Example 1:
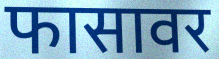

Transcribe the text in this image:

फासावर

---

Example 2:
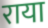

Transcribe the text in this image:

राया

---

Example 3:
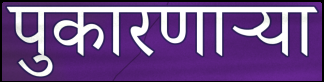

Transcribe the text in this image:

पुकारणार्‍या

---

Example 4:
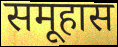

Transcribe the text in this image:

समूहास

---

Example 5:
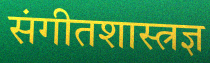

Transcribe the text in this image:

संगीतशास्त्रज्ञ